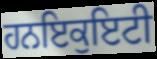
ਹਨਇਕੁਇਟੀ